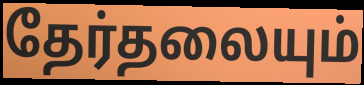
தேர்தலையும்